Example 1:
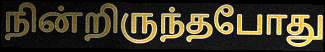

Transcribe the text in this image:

நின்றிருந்தபோது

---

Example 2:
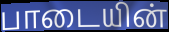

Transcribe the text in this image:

பாடையின்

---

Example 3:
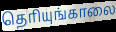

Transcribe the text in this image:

தெரியுங்காலை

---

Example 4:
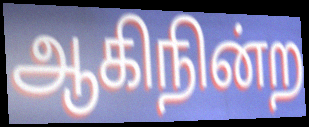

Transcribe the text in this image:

ஆகிநின்ற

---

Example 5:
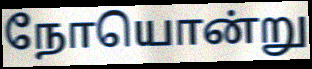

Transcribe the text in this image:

நோயொன்று